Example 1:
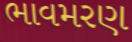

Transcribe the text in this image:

ભાવમરણ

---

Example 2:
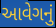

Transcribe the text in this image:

આવેગનું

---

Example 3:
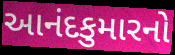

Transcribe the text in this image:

આનંદકુમારનો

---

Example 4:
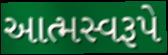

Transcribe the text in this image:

આત્મસ્વરૂપે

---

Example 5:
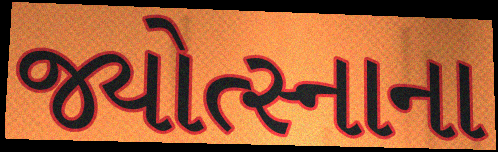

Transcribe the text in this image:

જ્યોત્સ્નાના